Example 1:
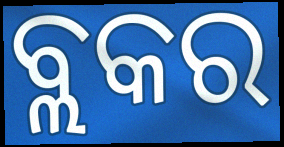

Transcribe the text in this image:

ବ୍ଲକର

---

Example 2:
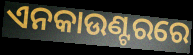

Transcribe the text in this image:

ଏନକାଉଣ୍ଟରରେ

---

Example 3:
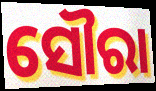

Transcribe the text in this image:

ସୌରା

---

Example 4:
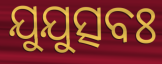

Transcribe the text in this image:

ଯୁଯୁତ୍ସବଃ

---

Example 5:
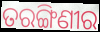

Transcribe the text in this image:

ତରଙ୍ଗିଣୀର